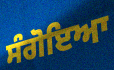
ਸੰਗੋਇਆ